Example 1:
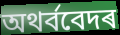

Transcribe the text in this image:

অথৰ্ববেদৰ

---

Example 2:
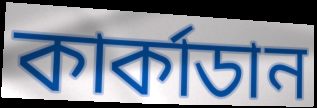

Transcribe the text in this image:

কাৰ্কাডান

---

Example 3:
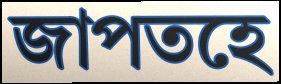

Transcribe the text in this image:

জাপতহে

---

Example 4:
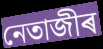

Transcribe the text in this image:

নেতাজীৰ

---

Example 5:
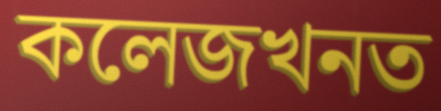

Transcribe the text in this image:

কলেজখনত